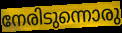
നേരിടുന്നൊരു